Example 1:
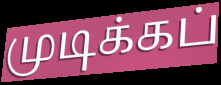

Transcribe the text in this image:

முடிக்கப்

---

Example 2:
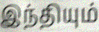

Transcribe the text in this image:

இந்தியும்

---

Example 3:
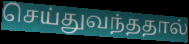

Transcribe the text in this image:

செய்துவந்ததால்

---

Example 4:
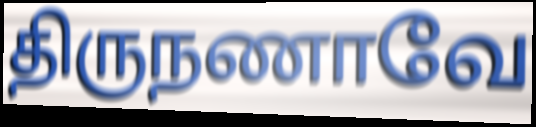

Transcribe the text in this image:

திருநணாவே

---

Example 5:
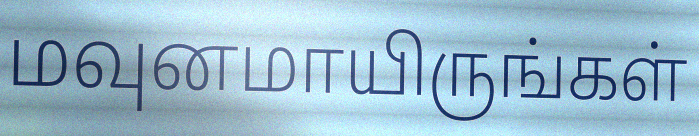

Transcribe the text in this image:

மவுனமாயிருங்கள்